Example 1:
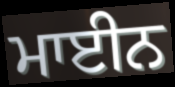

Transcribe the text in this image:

ਮਾਈਨ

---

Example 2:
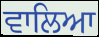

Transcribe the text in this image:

ਵਾਲਿਆ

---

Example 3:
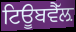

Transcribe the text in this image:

ਟਿਊਬਵੈੱਲ਼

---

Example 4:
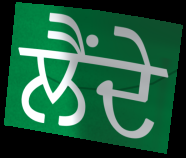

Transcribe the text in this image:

ਲੈਂਦੇ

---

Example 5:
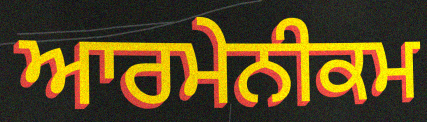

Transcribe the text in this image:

ਆਰਮੇਨੀਕਮ